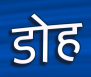
डोह